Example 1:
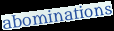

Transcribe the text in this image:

abominations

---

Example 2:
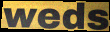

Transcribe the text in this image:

weds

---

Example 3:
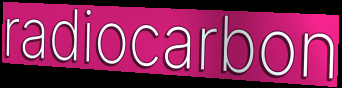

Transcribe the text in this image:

radiocarbon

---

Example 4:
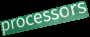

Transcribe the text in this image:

processors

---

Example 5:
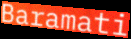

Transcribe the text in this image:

Baramati